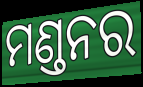
ମଣ୍ଡନର